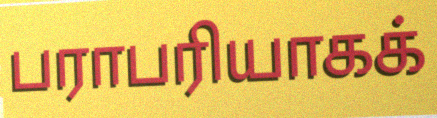
பராபரியாகக்